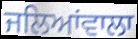
ਜਲਿਆਂਵਾਲਾ